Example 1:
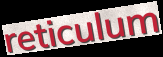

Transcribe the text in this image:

reticulum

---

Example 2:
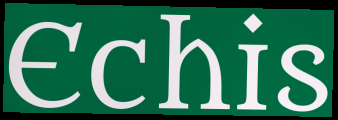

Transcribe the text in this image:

Echis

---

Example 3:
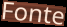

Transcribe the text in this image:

Fonte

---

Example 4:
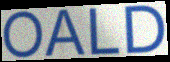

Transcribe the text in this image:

OALD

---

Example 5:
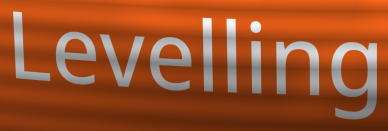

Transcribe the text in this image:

Levelling